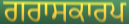
ਗਰਾਸਕਾਰਪ